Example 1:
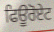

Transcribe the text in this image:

ਫਿਊਰੋਏਟ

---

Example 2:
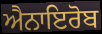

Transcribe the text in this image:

ਐਨਾਇਰੋਬ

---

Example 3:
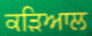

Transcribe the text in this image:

ਕੜਿਆਲ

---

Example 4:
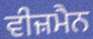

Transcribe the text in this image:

ਵੀਜ਼ਮੈਨ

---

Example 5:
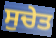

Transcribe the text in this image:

ਸੁਚੇਤ